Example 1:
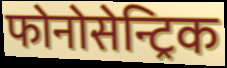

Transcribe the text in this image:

फोनोसेन्ट्रिक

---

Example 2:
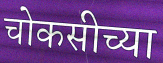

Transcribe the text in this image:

चोकसीच्या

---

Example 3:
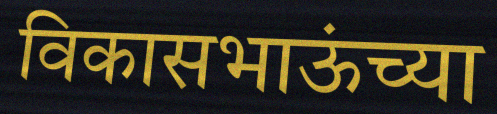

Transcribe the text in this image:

विकासभाऊंच्या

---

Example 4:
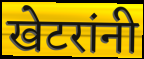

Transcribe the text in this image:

खेटरांनी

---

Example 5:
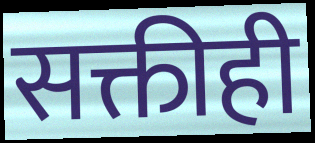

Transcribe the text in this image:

सक्तीही